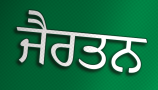
ਜੈਰਤਨ